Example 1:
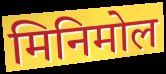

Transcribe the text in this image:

मिनिमोल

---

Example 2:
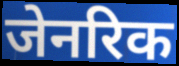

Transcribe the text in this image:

जेनरिक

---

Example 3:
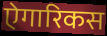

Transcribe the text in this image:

ऐगारिकस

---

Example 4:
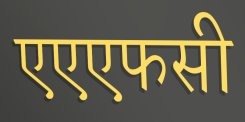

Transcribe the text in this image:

एएएफसी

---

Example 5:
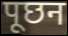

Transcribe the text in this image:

पूछन